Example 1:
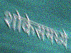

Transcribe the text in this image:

शोकेसमध्ये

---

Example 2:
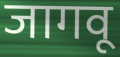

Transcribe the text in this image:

जागवू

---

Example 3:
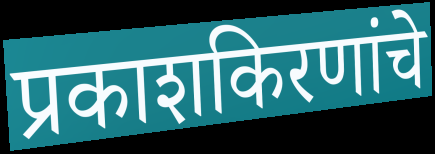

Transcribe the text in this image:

प्रकाशकिरणांचे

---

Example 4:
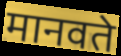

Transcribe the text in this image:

मानवते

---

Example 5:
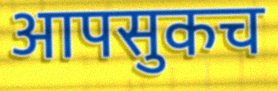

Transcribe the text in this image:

आपसुकच